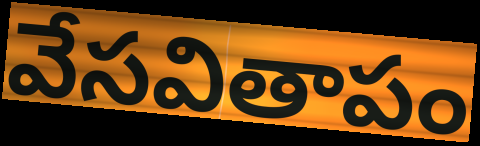
వేసవితాపం